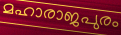
മഹാരാജപുരം